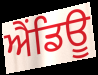
ਐਂਡਿਊ